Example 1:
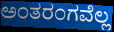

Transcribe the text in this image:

ಅಂತರಂಗವೆಲ್ಲ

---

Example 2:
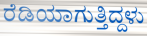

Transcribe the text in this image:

ರೆಡಿಯಾಗುತ್ತಿದ್ದಳು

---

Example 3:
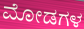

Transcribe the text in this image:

ಮೋಡಗಳ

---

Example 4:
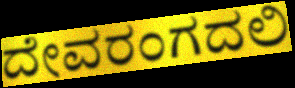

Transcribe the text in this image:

ದೇವರಂಗದಲಿ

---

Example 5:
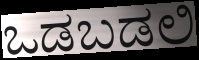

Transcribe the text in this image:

ಒಡಬಡಲಿ